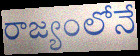
రాజ్యంలోనే